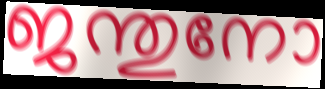
ജന്തുനോ